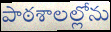
పాఠశాలల్లోను